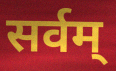
सर्वम्